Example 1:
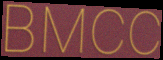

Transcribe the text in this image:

BMCC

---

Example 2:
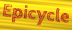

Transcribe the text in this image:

Epicycle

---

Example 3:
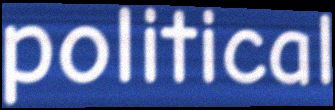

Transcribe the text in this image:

political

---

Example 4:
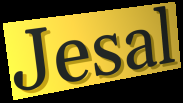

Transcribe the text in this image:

Jesal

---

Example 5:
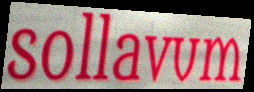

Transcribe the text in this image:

sollavum